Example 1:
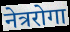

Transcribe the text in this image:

नेत्ररोगा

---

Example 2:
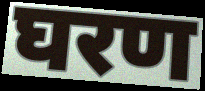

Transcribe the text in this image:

घरण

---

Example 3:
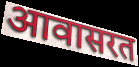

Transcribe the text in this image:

आवासरत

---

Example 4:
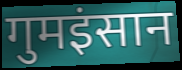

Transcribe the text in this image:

गुमइंसान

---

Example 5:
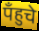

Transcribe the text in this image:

पँहुचे